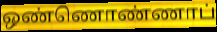
ஒண்ணொண்ணாப்